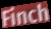
Finch